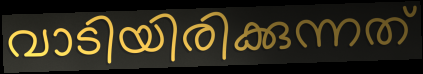
വാടിയിരിക്കുന്നത്